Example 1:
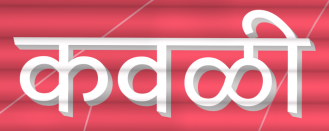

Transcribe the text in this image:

कवळी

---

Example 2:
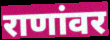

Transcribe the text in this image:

राणांवर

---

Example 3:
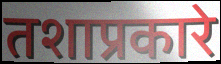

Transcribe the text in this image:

तशाप्रकारे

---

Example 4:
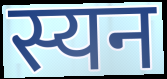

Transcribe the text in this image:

स्यन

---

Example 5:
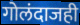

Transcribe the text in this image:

गोलंदाजही